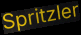
Spritzler